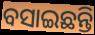
ବସାଇଛନ୍ତି